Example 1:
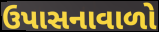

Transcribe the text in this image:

ઉપાસનાવાળો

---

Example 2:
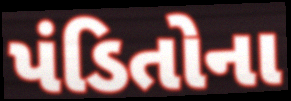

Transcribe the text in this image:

પંડિતોના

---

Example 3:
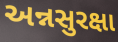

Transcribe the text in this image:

અન્નસુરક્ષા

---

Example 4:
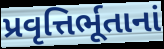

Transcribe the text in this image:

પ્રવૃત્તિર્ભૂતાનાં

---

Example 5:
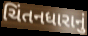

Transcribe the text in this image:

ચિંતનધારાનું